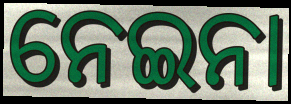
ନେଇନା